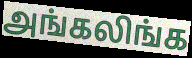
அங்கலிங்க